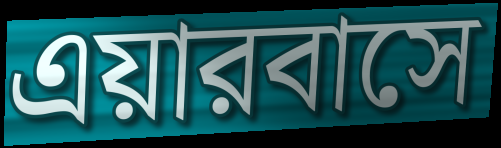
এয়ারবাসে